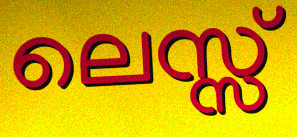
ലെസ്സ്